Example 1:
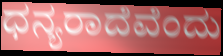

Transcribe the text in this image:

ಧನ್ಯರಾದೆವೆಂದು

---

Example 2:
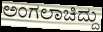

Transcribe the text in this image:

ಅಂಗಲಾಚಿದ್ದು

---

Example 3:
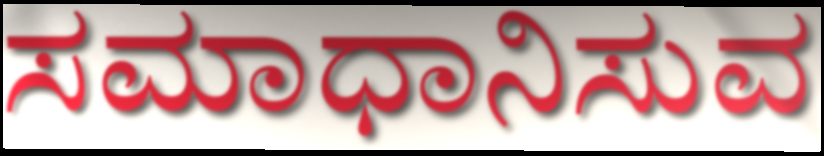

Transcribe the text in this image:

ಸಮಾಧಾನಿಸುವ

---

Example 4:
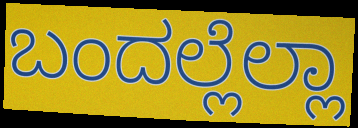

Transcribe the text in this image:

ಬಂದಲ್ಲೆಲ್ಲಾ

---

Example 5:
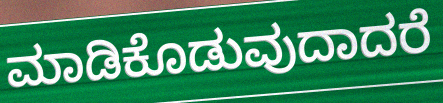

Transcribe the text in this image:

ಮಾಡಿಕೊಡುವುದಾದರೆ